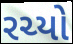
રચ્યો